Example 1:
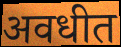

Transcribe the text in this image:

अवधीत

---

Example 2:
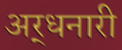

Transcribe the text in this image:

अर्धनारी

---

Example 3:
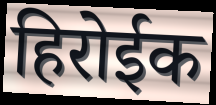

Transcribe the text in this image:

हिरोईक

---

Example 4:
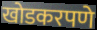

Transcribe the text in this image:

खोडकरपणे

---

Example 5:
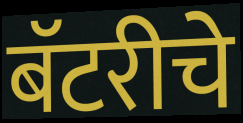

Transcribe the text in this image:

बॅटरीचे